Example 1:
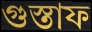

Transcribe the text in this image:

গুস্তাফ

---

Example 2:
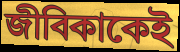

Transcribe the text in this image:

জীবিকাকেই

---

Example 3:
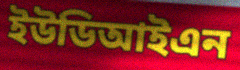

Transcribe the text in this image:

ইউডিআইএন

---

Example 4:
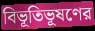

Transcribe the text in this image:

বিভূতিভূষণের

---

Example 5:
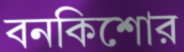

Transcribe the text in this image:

বনকিশোর